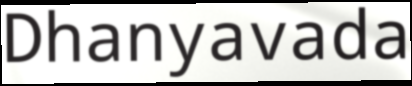
Dhanyavada